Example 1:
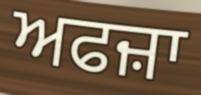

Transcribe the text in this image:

ਅਫਜ਼ਾ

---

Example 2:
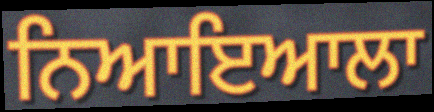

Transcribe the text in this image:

ਨਿਆਇਆਲਾ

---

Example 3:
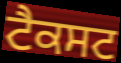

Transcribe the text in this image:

ਟੈਕਸਟ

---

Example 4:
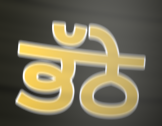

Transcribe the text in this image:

ਭੱਠੇ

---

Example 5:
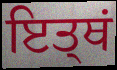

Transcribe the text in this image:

ਇਤ੍ਥਂ